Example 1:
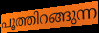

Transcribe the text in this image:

പൂത്തിറങ്ങുന്ന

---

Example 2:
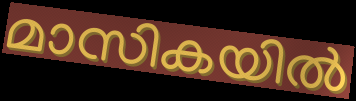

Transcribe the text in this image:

മാസികയിൽ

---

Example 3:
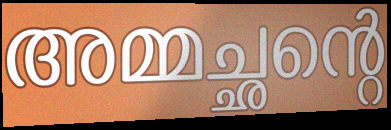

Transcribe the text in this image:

അമ്മച്ഛന്റെ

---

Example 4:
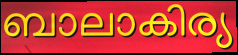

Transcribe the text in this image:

ബാലാകിര്യ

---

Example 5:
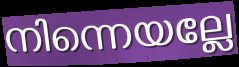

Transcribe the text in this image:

നിന്നെയല്ലേ